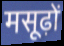
मसूढ़ों